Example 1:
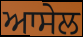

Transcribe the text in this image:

ਆਸੇਲ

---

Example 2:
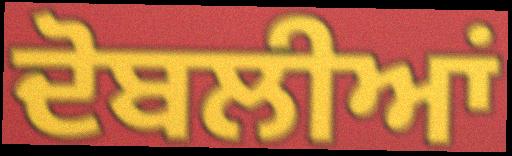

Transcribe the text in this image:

ਦੋਬਲੀਆਂ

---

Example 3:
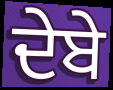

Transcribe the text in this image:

ਦੇਬੇ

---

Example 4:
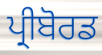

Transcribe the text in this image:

ਪ੍ਰੀਬੋਰਡ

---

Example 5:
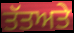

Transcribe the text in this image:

ਤੱਤਅਤੇ